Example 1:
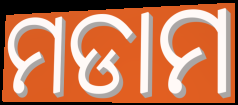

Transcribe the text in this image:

ମଡାମ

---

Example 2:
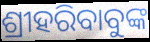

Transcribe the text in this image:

ଶ୍ରୀହରିବାବୁଙ୍କ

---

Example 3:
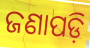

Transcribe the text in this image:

ଜଣାପଡ଼ି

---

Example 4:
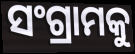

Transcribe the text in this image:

ସଂଗ୍ରାମକୁ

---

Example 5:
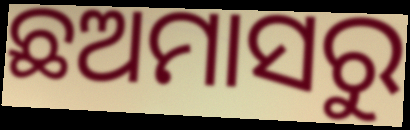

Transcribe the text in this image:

ଛଅମାସରୁ